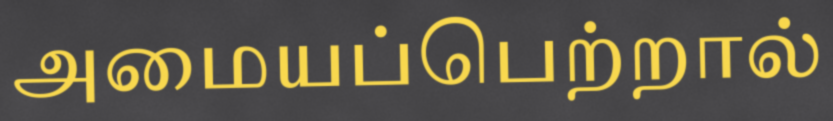
அமையப்பெற்றால்